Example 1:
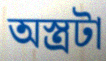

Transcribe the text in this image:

অস্ত্রটা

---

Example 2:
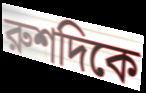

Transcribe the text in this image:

রুশদিকে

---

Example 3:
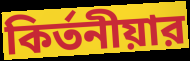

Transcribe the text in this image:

কির্তনীয়ার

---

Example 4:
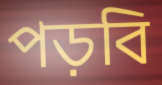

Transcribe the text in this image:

পড়বি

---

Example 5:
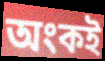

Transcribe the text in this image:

অংকই